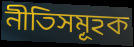
নীতিসমূহক